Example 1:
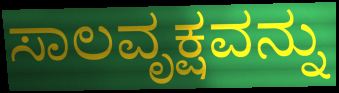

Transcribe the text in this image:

ಸಾಲವೃಕ್ಷವನ್ನು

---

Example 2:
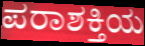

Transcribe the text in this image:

ಪರಾಶಕ್ತಿಯ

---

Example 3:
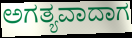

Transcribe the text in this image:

ಅಗತ್ಯವಾದಾಗ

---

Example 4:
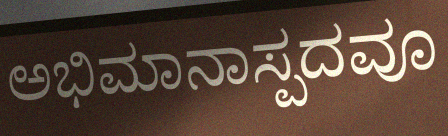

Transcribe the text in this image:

ಅಭಿಮಾನಾಸ್ಪದವೂ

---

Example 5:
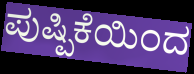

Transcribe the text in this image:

ಪುಷ್ಪಿಕೆಯಿಂದ